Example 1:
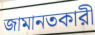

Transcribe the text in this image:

জামানতকারী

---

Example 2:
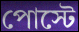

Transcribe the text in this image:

পোস্টে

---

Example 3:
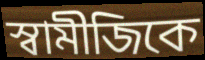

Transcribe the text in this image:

স্বামীজিকে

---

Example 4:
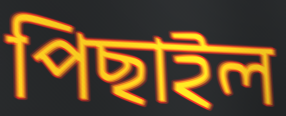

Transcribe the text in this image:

পিছাইল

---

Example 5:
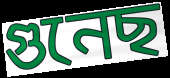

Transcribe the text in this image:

গুনেছ